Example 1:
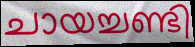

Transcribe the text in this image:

ചായച്ചണ്ടി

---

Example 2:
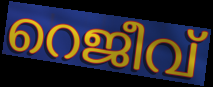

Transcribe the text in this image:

റെജീവ്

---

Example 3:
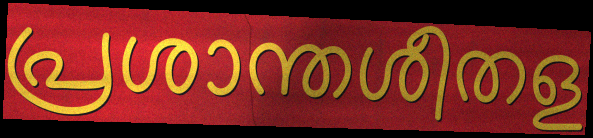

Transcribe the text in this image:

പ്രശാന്തശീതള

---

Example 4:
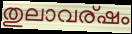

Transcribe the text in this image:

തുലാവര്ഷം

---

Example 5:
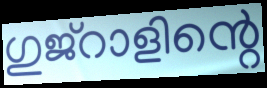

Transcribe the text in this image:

ഗുജ്റാളിന്റെ